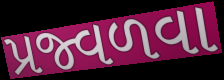
પ્રજ્વળવા